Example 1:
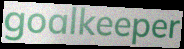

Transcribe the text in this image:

goalkeeper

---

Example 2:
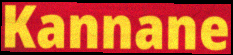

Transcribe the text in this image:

Kannane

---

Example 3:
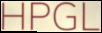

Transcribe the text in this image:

HPGL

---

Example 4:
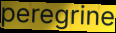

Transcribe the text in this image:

peregrine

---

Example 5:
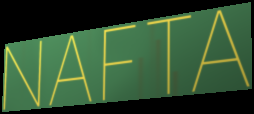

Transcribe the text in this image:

NAFTA